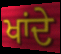
ਖਾਂਦੇ